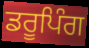
ਡਰੂਪਿੰਗ